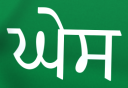
ਘੇਸ